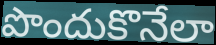
పొందుకొనేలా